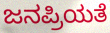
ಜನಪ್ರಿಯತೆ